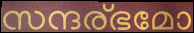
സന്ദര്ഭമോ